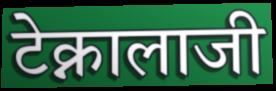
टेक्नालाजी